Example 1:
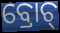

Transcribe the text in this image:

ବ୍ରୋଚ୍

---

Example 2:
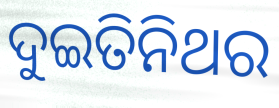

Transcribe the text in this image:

ଦୁଇତିନିଥର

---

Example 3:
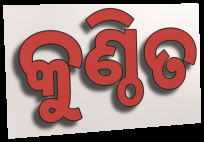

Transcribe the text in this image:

କୁଣ୍ଠିତ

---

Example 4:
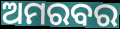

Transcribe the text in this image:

ଅମରବର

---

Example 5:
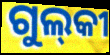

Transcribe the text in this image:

ଗୁଲ୍‌କୀ